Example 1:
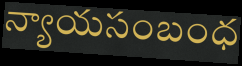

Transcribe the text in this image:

న్యాయసంబంధ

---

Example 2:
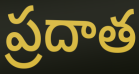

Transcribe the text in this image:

ప్రదాత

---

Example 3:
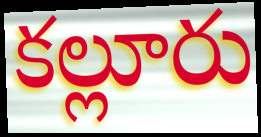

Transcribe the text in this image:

కల్లూరు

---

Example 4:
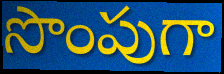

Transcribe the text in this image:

సొంపుగా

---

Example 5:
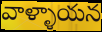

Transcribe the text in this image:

వాళ్ళాయన